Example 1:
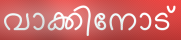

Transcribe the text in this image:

വാക്കിനോട്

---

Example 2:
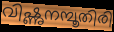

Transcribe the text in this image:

വിഷ്ണുനമ്പൂതിരി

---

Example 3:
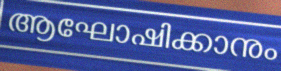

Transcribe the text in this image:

ആഘോഷിക്കാനും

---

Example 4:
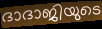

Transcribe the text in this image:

ദാദാജിയുടെ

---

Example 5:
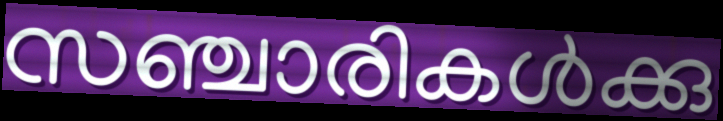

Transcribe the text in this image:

സഞ്ചാരികൾക്കു